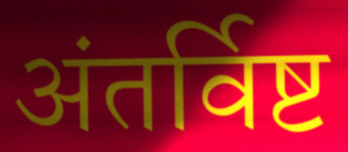
अंतर्विष्ट